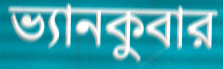
ভ্যানকুবার